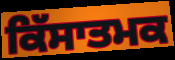
ਕਿੱਸਾਤਮਕ